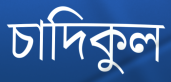
চাদিকুল